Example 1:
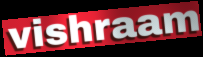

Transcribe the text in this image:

vishraam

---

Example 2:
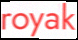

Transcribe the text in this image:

royak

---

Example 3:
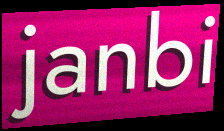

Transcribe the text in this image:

janbi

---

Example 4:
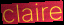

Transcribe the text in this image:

claire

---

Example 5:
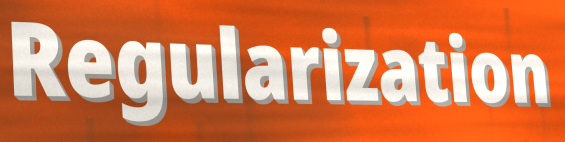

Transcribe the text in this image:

Regularization